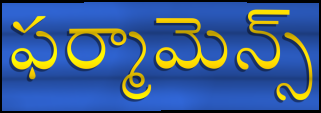
ఫర్మామెన్స్